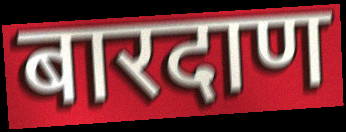
बारदाण